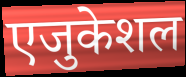
एजुकेशल